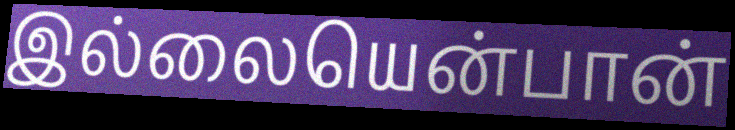
இல்லையென்பான்